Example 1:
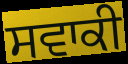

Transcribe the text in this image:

ਸਵਾਕੀ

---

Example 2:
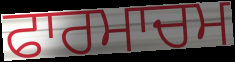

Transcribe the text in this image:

ਫਾਰਮਾਚਮ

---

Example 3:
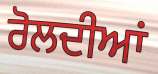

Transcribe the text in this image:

ਰੋਲਦੀਆਂ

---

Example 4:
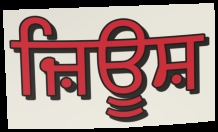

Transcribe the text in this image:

ਜ਼ਿਊਸ਼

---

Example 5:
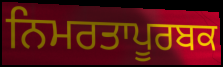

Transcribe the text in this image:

ਨਿਮਰਤਾਪੂਰਬਕ